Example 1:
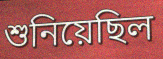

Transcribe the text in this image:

শুনিয়েছিল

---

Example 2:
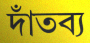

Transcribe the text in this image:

দাঁতব্য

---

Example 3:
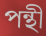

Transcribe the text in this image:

পন্থী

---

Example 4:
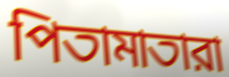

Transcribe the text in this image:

পিতামাতারা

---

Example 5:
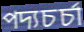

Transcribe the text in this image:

পদ্যচর্চা